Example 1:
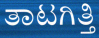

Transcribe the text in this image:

ತಾಟಗಿತ್ತಿ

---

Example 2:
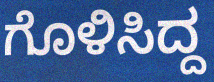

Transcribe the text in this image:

ಗೊಳಿಸಿದ್ದ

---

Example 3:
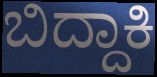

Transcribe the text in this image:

ಬಿದ್ದಾಕಿ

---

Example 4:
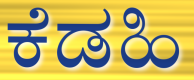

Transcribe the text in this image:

ಕೆಡಹಿ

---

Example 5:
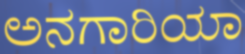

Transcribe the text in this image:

ಅನಗಾರಿಯಾ